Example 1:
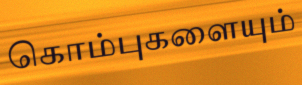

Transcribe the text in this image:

கொம்புகளையும்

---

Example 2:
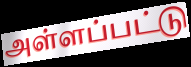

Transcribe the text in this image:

அள்ளப்பட்டு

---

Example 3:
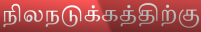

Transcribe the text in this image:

நிலநடுக்கத்திற்கு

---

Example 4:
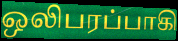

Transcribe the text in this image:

ஒலிபரப்பாகி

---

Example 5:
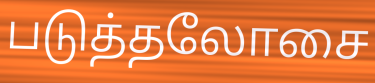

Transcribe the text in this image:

படுத்தலோசை